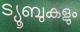
ട്യൂബുകളും